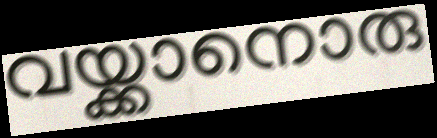
വയ്ക്കാനൊരു